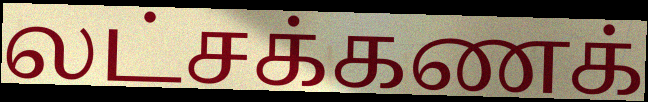
லட்சக்கணக்